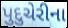
પુદુચેરીના